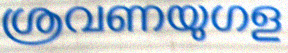
ശ്രവണയുഗള